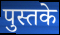
पुस्तके